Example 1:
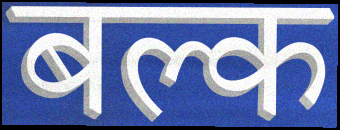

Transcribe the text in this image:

बल्क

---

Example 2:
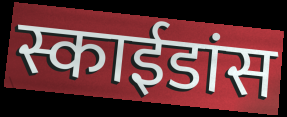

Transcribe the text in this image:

स्काईडांस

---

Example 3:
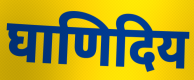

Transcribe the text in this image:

घाणिदिय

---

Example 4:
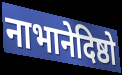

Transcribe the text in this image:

नाभानेदिष्ठो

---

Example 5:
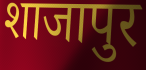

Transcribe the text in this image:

शाजापुर